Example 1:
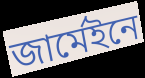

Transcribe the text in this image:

জার্মেইনে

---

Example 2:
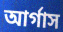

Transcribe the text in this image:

আর্গাস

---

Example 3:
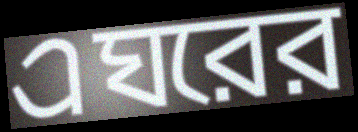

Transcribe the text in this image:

এঘরের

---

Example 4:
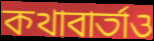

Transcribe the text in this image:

কথাবার্তাও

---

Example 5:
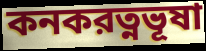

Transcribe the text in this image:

কনকরত্নভূষা